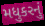
મધુકરનું